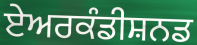
ਏਅਰਕੰਡੀਸ਼ਨਡ